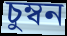
চুম্বন